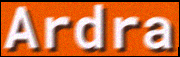
Ardra